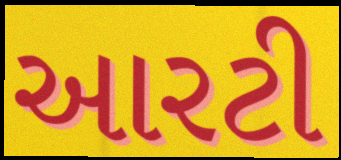
આરટી